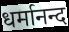
धर्मानन्द